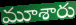
మూశారు